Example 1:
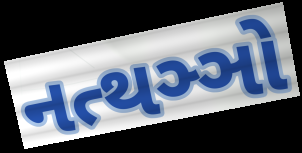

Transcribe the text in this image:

નત્થઞ્ઞો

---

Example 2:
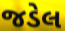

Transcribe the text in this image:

જડેલ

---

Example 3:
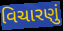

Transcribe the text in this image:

વિચારણું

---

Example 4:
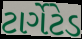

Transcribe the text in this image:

ટાર્ગેટેડ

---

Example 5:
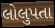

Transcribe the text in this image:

લોલુપતા